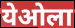
येओला